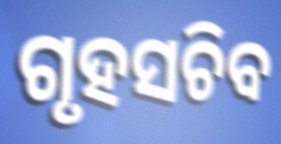
ଗୃହସଚିବ